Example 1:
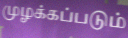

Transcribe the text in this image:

முழக்கப்படும்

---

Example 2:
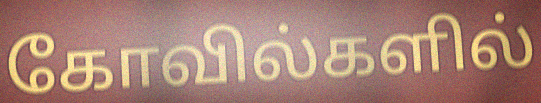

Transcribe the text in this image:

கோவில்களில்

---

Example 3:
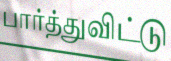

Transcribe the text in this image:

பார்த்துவிட்டு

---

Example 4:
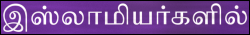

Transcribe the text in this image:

இஸ்லாமியர்களில்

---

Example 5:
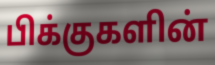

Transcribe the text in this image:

பிக்குகளின்